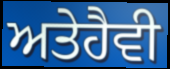
ਅਤੇਹੈਵੀ